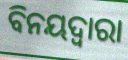
ବିନୟଦ୍ୱାରା